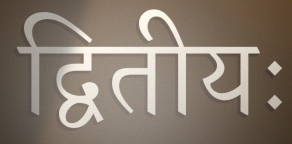
द्वितीयः